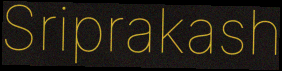
Sriprakash